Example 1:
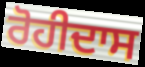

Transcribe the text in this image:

ਰੋਹੀਦਾਸ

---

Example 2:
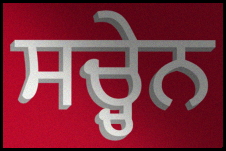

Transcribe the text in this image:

ਸਚ੍ਚੇਨ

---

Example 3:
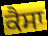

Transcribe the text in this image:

ਕੈਸਾ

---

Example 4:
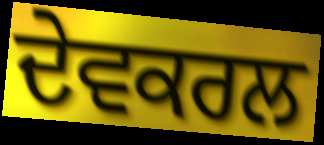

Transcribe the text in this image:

ਦੇਵਕਰਲ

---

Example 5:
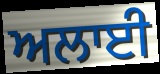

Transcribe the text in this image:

ਅਲਾਈ